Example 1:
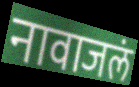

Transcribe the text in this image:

नावाजलं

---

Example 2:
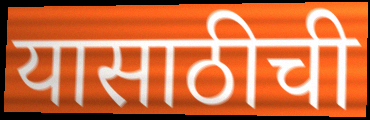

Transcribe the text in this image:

यासाठीची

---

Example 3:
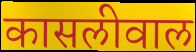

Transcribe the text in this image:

कासलीवाल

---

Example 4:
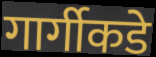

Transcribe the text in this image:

गार्गीकडे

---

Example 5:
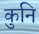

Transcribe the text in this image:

कुनि